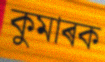
কুমাৰক